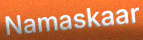
Namaskaar